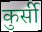
कुर्सी